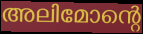
അലിമോന്റെ